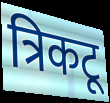
त्रिकटू